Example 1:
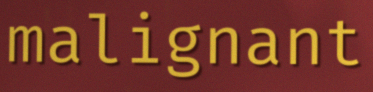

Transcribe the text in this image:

malignant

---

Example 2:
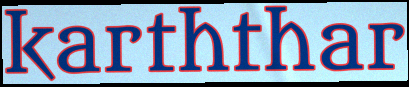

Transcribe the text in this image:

karththar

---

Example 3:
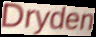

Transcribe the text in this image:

Dryden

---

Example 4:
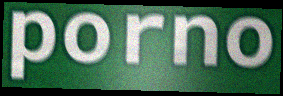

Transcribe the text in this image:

porno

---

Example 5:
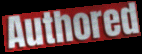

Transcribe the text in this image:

Authored